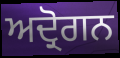
ਅਦ੍ਰੋਗਨ